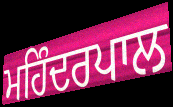
ਮਹਿੰਦਰਪਾਲ